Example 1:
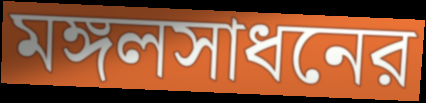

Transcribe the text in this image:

মঙ্গলসাধনের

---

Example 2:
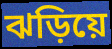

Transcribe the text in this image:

ঝড়িয়ে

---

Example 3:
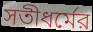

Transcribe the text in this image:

সতীধর্মের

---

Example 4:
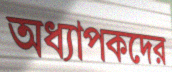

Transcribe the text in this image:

অধ্যাপকদের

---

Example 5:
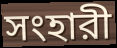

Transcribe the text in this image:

সংহারী